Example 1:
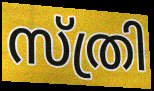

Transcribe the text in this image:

സ്ത്രി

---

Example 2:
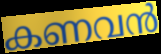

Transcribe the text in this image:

കണവൻ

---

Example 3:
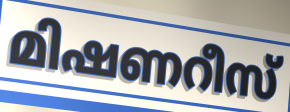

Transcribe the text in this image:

മിഷണറീസ്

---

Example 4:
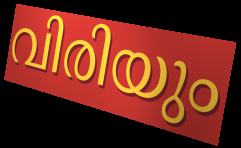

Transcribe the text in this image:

വിരിയും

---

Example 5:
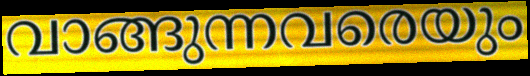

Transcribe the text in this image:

വാങ്ങുന്നവരെയും